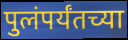
पुलंपर्यंतच्या